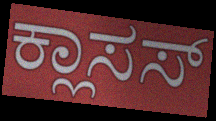
ಕ್ಲಾಸಸ್